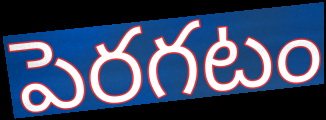
పెరగటం